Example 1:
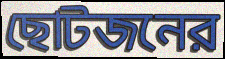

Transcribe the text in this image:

ছোটজনের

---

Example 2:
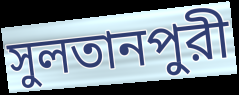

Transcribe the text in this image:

সুলতানপুরী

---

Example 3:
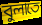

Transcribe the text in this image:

বুলাতে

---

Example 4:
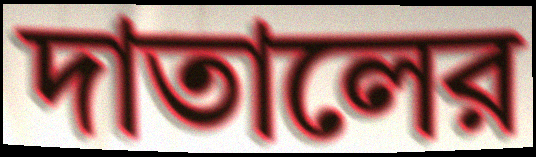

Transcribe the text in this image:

দাতালের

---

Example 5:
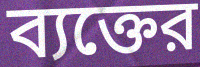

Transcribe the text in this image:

ব্যক্তের